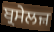
ਬ੍ਰਸੇਲਜ਼